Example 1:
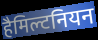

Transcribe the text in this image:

हैमिल्टनियन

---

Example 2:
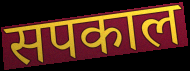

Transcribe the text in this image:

सपकाल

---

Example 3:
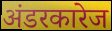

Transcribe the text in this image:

अंडरकारेज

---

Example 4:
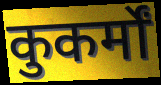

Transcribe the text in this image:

कुकर्मों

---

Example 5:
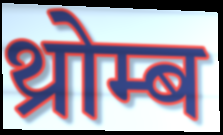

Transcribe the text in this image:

थ्रोम्ब